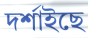
দৰ্শাইছে